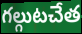
గల్గుటచేత